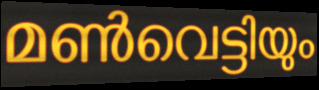
മൺവെട്ടിയും